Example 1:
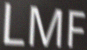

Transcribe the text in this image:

LMF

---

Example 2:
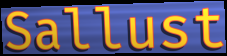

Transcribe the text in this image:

Sallust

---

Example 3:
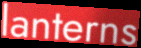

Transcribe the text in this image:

lanterns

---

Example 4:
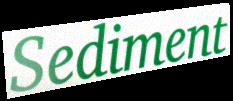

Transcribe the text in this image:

Sediment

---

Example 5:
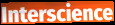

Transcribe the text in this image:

Interscience